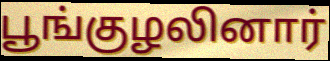
பூங்குழலினார்